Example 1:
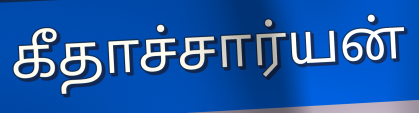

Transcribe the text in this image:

கீதாச்சார்யன்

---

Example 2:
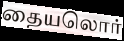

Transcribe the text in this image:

தையலொர்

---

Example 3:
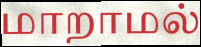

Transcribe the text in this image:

மாறாமல்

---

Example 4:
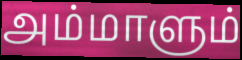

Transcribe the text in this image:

அம்மாளும்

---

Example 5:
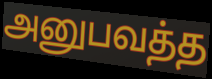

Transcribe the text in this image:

அனுபவத்த